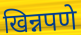
खिन्नपणे